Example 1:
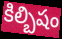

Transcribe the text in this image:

కిల్బిషం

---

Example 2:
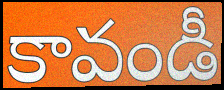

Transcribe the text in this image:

కావండీ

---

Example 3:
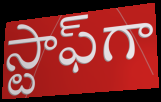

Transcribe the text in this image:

స్టాఫ్‌గా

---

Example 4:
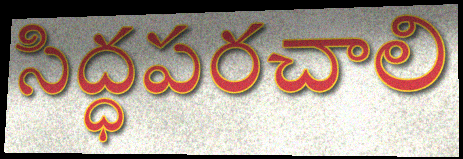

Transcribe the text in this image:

సిద్ధపరచాలి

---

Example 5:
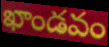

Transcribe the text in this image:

ఖాండవం